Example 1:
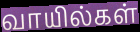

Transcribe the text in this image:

வாயில்கள்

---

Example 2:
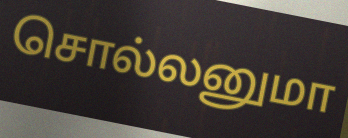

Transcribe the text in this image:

சொல்லனுமா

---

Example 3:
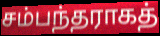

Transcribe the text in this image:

சம்பந்தராகத்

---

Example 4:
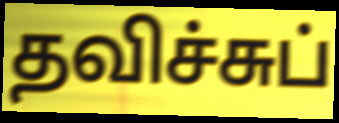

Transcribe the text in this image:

தவிச்சுப்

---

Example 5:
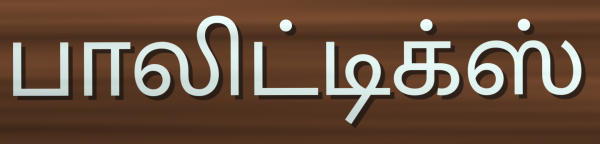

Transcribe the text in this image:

பாலிட்டிக்ஸ்